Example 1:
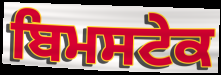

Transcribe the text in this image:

ਬਿਮਸਟੇਕ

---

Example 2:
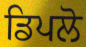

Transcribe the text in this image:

ਡਿਪਲੋ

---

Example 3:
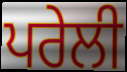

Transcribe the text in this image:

ਪਰੇਲੀ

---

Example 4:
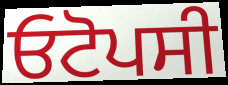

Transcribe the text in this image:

ਓਟੋਪਸੀ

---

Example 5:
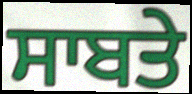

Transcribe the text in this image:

ਸਾਬਤੇ